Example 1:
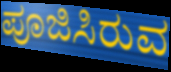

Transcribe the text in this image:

ಪೂಜಿಸಿರುವ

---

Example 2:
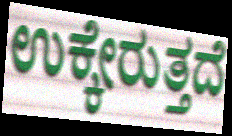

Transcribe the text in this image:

ಉಕ್ಕೇರುತ್ತದೆ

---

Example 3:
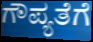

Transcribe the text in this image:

ಗೌಪ್ಯತೆಗೆ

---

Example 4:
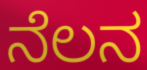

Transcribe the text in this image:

ನೆಲನ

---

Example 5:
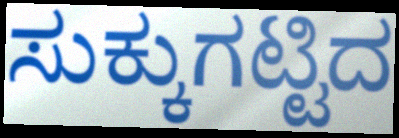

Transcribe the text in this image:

ಸುಕ್ಕುಗಟ್ಟಿದ